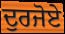
ਦੁਰਜੋਏ